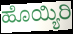
ಹೊಯ್ಯಿರಿ